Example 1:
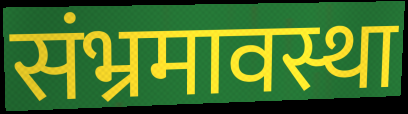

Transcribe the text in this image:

संभ्रमावस्था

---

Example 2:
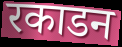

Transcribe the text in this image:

रकाडन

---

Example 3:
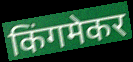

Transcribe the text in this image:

किंगमेकर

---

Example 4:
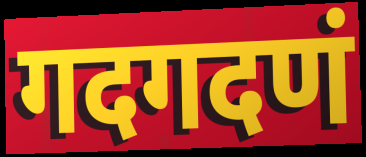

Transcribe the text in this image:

गदगदणं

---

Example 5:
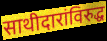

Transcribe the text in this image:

साथीदारांविरुद्ध